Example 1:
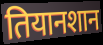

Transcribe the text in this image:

तियानशान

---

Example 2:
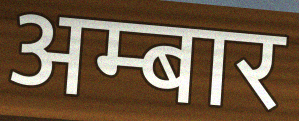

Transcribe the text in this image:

अम्बार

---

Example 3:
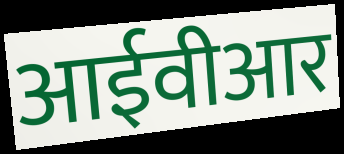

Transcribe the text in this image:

आईवीआर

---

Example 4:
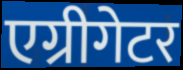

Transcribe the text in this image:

एग्रीगेटर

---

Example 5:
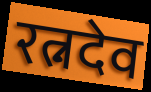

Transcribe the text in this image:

रत्नदेव